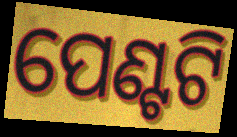
ପେଣ୍ଟଟି